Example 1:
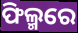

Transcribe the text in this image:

ଫିଲ୍ମରେ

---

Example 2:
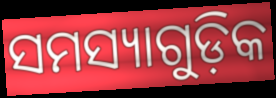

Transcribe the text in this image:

ସମସ୍ୟାଗୁଡ଼ିକ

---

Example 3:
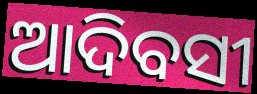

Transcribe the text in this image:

ଆଦିବସୀ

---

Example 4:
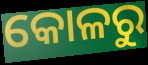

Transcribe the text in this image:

କୋଳରୁ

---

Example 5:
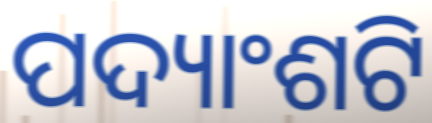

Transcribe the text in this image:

ପଦ୍ୟାଂଶଟି